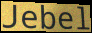
Jebel